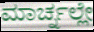
ಮಾರ್ಚ್ನಲ್ಲೇ